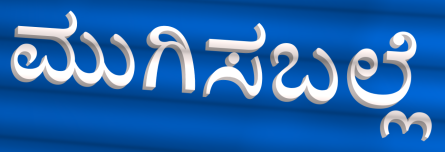
ಮುಗಿಸಬಲ್ಲೆ